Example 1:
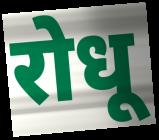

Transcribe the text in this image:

रोधू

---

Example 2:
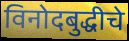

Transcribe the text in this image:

विनोदबुद्धीचे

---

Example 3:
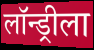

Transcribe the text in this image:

लॉन्ड्रीला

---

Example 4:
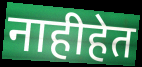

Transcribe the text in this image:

नाहीहेत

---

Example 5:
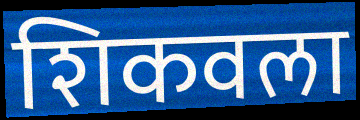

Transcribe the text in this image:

शिकवला